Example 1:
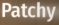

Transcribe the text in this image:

Patchy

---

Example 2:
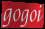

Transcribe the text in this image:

gogoi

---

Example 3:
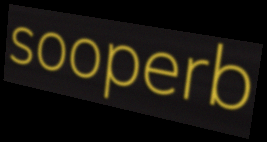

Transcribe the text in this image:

sooperb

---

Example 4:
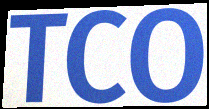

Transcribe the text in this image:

TCO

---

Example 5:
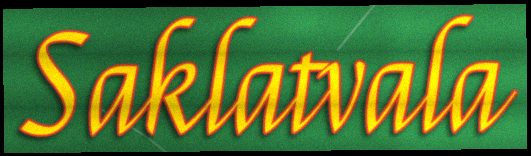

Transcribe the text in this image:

Saklatvala